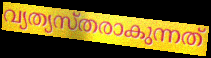
വ്യത്യസ്തരാകുന്നത്